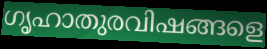
ഗൃഹാതുരവിഷങ്ങളെ